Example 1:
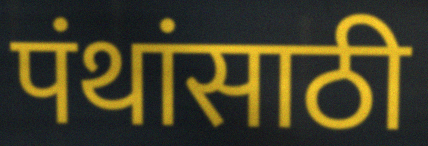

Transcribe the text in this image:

पंथांसाठी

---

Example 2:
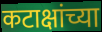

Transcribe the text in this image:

कटाक्षांच्या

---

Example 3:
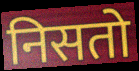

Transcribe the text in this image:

निसतो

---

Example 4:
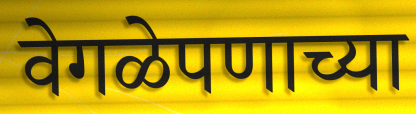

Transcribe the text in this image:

वेगळेपणाच्या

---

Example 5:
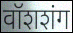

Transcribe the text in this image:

वॉशशंग